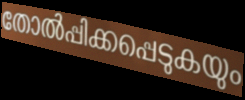
തോൽപ്പിക്കപ്പെടുകയും